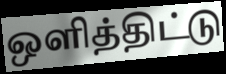
ஒளித்திட்டு